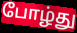
போழ்து